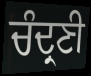
ਚੰਦ੍ਰਣੀ